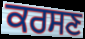
ਕਰਸਣ